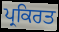
ਪ੍ਰਕਿਰਤ